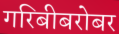
गरिबीबरोबर